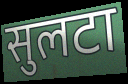
सुलटा